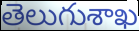
తెలుగుశాఖ